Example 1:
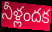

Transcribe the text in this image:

నీళ్లందక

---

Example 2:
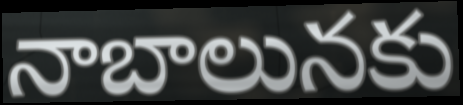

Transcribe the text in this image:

నాబాలునకు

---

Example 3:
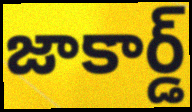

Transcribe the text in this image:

జాకార్డ్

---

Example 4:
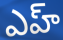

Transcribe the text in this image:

ఎహ్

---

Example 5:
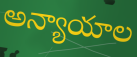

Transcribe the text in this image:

అన్యాయాల